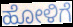
ಹೋಳಿಗೆ